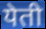
येती